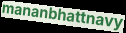
mananbhattnavy